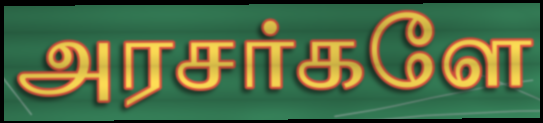
அரசர்களே